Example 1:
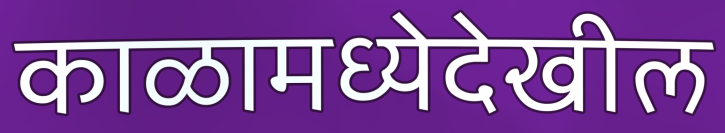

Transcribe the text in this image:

काळामध्येदेखील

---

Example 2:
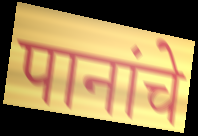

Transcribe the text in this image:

पानांचे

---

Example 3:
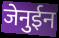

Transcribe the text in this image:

जेनुईन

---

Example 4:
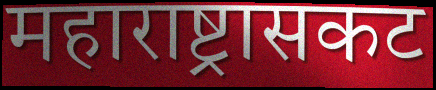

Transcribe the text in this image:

महाराष्ट्रासकट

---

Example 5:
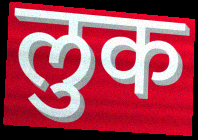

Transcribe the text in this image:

लुक